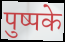
पुष्पके